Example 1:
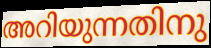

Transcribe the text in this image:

അറിയുന്നതിനു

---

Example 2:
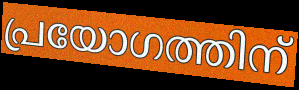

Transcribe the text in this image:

പ്രയോഗത്തിന്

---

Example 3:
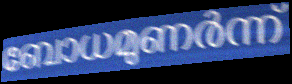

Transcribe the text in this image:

ബോധമുണർന്ന്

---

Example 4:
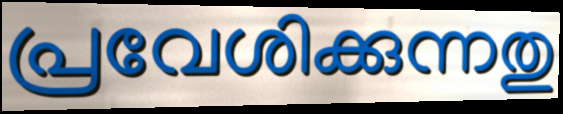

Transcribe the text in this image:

പ്രവേശിക്കുന്നതു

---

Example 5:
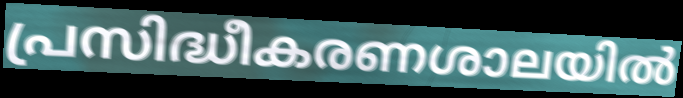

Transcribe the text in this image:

പ്രസിദ്ധീകരണശാലയിൽ